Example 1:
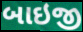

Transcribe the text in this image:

બાઇજી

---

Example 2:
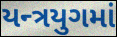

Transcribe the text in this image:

યન્ત્રયુગમાં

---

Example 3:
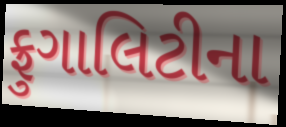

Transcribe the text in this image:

ફ્રુગાલિટીના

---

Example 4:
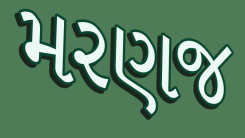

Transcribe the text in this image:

મરણજ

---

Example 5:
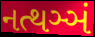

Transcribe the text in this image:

નત્થઞ્ઞં